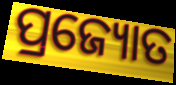
ପ୍ରଜ୍ୟୋତ